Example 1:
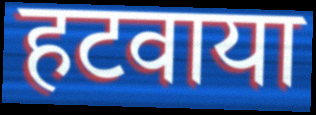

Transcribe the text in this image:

हटवाया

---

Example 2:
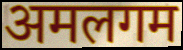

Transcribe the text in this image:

अमलगम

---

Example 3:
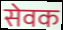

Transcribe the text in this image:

सेवक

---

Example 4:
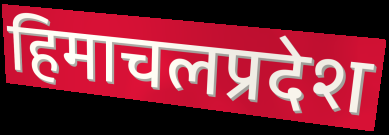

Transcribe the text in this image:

हिमाचलप्रदेश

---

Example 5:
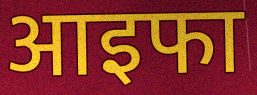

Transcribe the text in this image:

आइफा